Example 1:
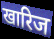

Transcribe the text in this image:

खारिज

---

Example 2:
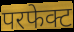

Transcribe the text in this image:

परफेक्ट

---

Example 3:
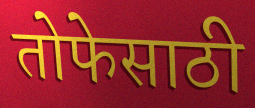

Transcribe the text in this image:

तोफेसाठी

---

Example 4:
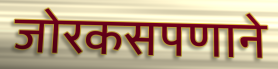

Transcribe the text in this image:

जोरकसपणाने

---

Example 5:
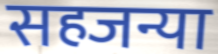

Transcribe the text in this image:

सहजन्या